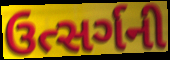
ઉત્સર્ગની